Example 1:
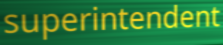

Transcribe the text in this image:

superintendent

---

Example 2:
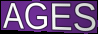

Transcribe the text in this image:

AGES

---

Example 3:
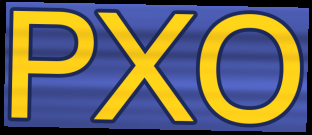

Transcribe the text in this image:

PXO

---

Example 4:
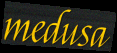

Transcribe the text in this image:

medusa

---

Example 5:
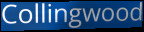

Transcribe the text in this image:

Collingwood